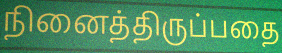
நினைத்திருப்பதை